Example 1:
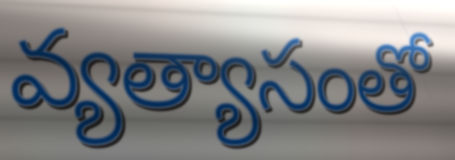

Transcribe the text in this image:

వ్యత్యాసంతో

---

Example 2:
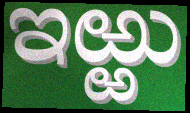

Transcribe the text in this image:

ఇఱ్ఱు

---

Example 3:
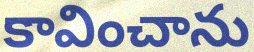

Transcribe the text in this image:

కావించాను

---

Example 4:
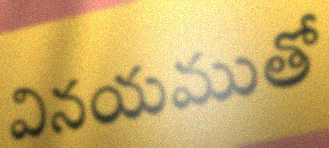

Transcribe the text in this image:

వినయముతో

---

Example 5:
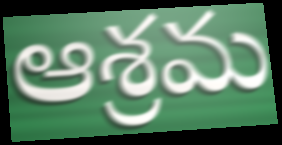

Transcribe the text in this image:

ఆశ్రమ